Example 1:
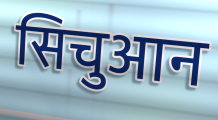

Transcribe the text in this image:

सिचुआन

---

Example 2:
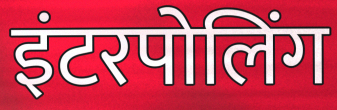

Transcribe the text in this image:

इंटरपोलिंग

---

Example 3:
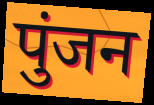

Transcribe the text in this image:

पुंजन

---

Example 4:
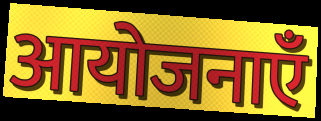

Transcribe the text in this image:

आयोजनाएँ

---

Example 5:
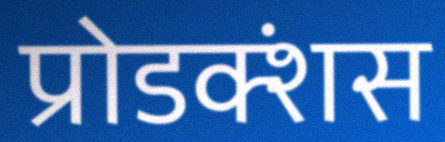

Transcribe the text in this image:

प्रोडक्शंस